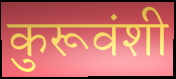
कुरूवंशी